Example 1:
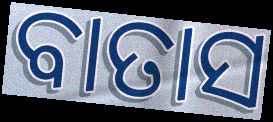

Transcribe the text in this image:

ବାତାସ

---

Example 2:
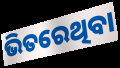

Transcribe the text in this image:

ଭିତରେଥିବା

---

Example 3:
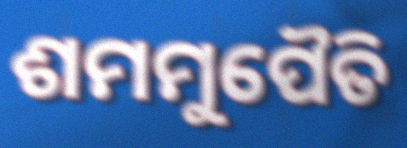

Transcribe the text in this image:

ଶମମୁପୈତି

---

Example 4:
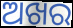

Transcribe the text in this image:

ଅଖର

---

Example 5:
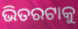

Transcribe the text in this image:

ଭିତରଟାକୁ